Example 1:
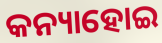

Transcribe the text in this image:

କନ୍ୟାହୋଇ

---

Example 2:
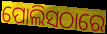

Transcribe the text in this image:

ପୋଲିସଠାରେ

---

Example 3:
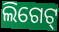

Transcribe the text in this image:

ଲିଗେଟ୍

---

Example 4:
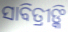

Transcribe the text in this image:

ସାବିତ୍ରୀଙ୍କି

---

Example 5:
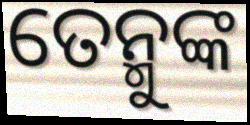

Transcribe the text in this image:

ତେନ୍ମୁଙ୍କ